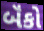
બૅંકો